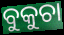
ବୁକୁଚା